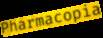
Pharmacopia